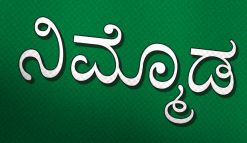
ನಿಮ್ಮೊಡ